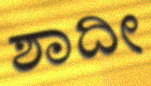
ಶಾದೀ